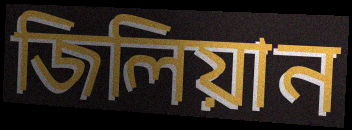
জিলিয়ান